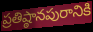
ప్రతిష్ఠానపురానికి